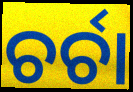
ଚର୍ଚା